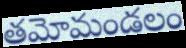
తమోమండలం